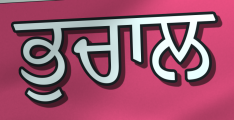
ਭੁਚਾਲ